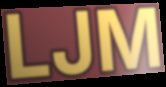
LJM